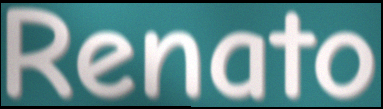
Renato